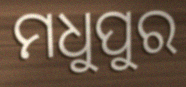
ମଧୁପୁର